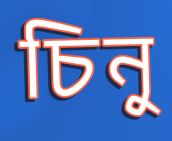
চিনু